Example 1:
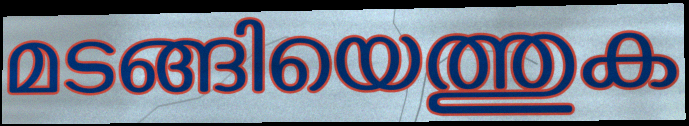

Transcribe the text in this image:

മടങ്ങിയെത്തുക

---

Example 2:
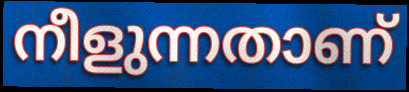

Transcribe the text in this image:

നീളുന്നതാണ്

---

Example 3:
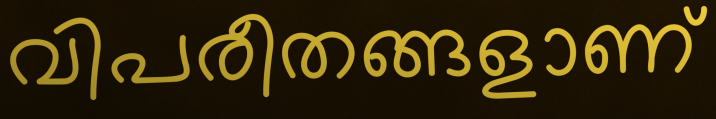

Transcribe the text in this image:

വിപരീതങ്ങളാണ്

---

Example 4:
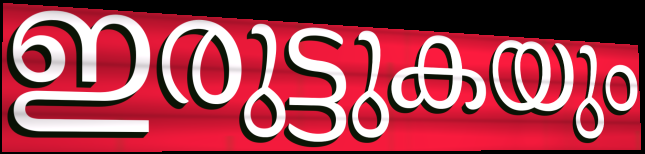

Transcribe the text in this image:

ഇരുട്ടുകയും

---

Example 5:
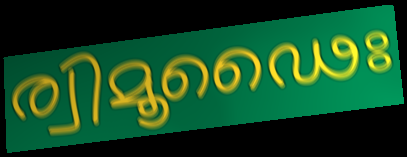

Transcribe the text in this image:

ര്വിമൂഢൈഃ